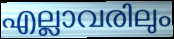
എല്ലാവരിലും